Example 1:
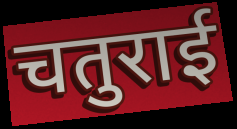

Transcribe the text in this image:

चतुराई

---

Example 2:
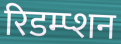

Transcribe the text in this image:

रिडम्प्शन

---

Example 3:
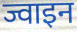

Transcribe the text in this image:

ज्वाइन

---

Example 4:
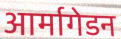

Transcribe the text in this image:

आर्मागेडन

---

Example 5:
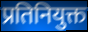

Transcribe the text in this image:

प्रतिनियुक्त